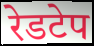
रेडटेप